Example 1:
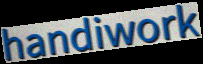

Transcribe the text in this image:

handiwork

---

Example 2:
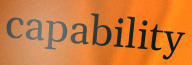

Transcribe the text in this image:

capability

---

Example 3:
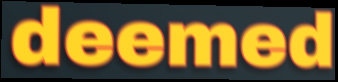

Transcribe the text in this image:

deemed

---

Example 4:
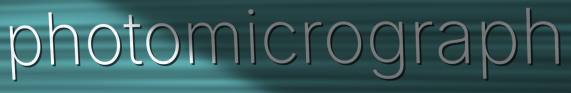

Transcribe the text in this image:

photomicrograph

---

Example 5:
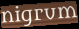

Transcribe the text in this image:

nigrum